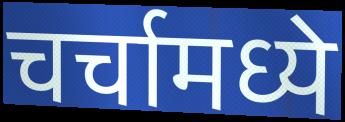
चर्चामध्ये